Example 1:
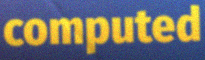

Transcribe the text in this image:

computed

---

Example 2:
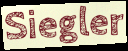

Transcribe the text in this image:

Siegler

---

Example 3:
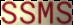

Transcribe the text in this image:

SSMS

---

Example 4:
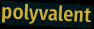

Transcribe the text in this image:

polyvalent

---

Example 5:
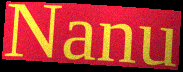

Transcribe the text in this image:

Nanu